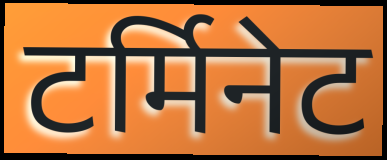
टर्मिनेट